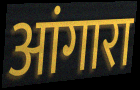
आंगारा